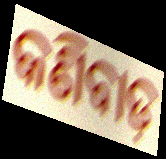
କଣିବାଡ଼